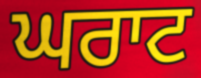
ਘਰਾਟ